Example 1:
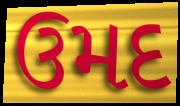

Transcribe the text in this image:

ઉમદ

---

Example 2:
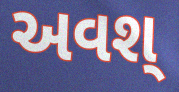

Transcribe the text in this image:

અવશ્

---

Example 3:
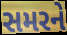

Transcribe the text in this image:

સમરને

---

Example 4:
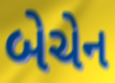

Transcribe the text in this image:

બેચેન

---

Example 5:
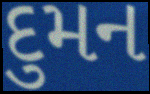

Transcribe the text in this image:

દુમન